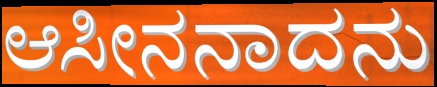
ಆಸೀನನಾದನು